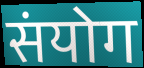
संयोग